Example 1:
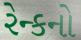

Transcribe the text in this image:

રેન્કનો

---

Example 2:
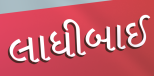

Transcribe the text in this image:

લાધીબાઈ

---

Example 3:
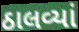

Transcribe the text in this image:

ઠાલવ્યાં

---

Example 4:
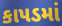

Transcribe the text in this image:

કાપડમાં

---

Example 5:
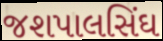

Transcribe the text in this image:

જશપાલસિંઘ